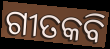
ଗୀତକବି